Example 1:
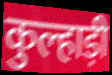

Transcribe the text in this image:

कुल्‍हाड़ी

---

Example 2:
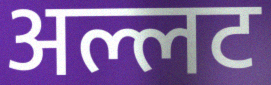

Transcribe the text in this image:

अल्लट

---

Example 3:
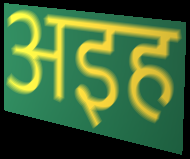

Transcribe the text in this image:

अइह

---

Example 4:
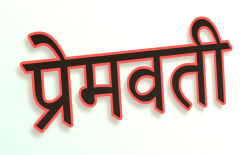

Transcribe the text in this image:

प्रेमवती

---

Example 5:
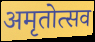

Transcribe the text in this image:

अमृतोत्सव